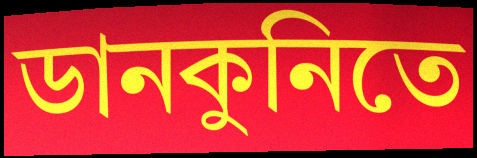
ডানকুনিতে